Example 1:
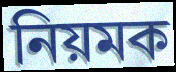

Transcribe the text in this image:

নিয়মক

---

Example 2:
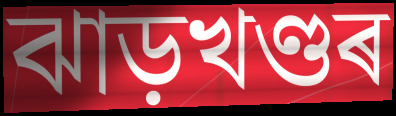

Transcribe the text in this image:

ঝাড়খণ্ডৰ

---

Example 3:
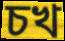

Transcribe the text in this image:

চখ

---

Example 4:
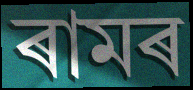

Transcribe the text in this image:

ৰামৰ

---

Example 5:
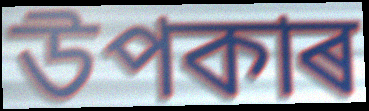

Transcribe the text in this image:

উপকাৰ